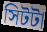
সিটটা